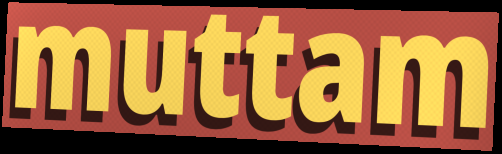
muttam